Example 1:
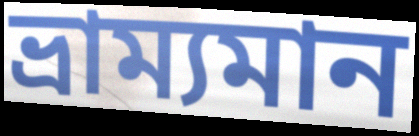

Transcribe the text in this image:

ভ্ৰাম্যমান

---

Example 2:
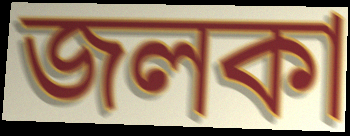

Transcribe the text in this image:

জলকা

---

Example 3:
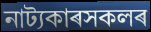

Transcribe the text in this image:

নাট্যকাৰসকলৰ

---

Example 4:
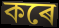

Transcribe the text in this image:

কৰে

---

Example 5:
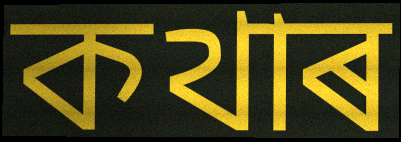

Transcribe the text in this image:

কথাৰ